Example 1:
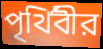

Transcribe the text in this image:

পৃর্থিবীর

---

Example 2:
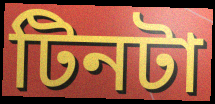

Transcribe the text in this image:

টিনটা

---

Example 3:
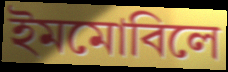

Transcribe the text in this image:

ইমমোবিলে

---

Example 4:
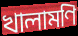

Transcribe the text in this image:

খালামণি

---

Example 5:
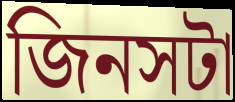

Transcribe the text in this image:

জিনসটা